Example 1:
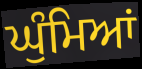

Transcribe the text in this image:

ਘੁੰਮਿਆਂ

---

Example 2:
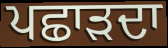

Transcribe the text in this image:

ਪਛਾੜਦਾ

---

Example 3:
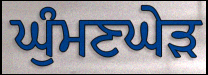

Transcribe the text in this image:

ਘੁੰਮਣਘੇੜ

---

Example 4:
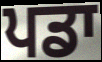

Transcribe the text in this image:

ਪਡਾ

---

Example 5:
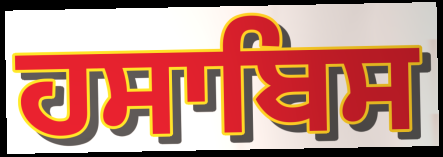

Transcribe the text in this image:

ਹਸਾਬਿਸ